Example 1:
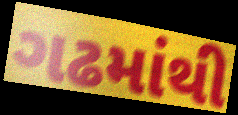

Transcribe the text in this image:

ગઢમાંથી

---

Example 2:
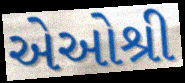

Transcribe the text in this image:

એઓશ્રી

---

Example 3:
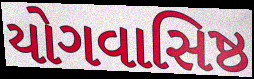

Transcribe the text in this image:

યોગવાસિષ્ઠ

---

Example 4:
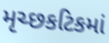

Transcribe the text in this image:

મૃચ્છકટિકમાં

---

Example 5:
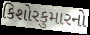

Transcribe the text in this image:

કિશોરકુમારનો